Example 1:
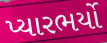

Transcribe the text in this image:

પ્યારભર્યો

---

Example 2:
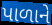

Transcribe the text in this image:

પાળાને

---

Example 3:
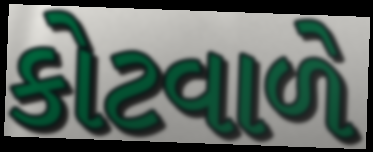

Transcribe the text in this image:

કોટવાળે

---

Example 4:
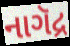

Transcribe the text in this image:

નાગૅદ્ર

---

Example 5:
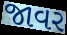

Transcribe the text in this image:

જાવર